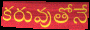
కరువుతోనే